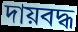
দায়বদ্ধ